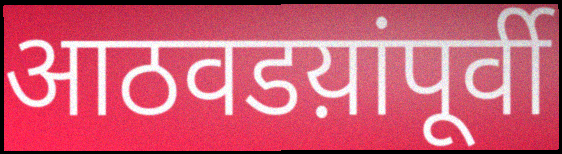
आठवडय़ांपूर्वी